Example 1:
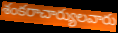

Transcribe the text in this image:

శంకరాచార్యులవారు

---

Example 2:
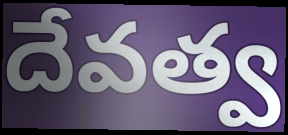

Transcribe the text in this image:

దేవత్వ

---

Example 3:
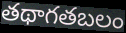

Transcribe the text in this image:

తథాగతబలం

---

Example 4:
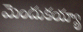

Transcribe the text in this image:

మెందుకయ్యా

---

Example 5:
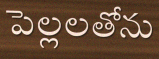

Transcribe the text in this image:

పెల్లలతోను